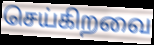
செய்கிறவை